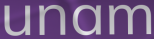
unam